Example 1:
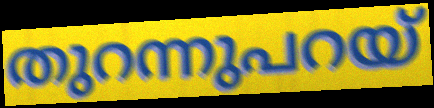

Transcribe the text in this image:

തുറന്നുപറയ്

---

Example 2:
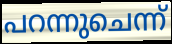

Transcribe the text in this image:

പറന്നുചെന്ന്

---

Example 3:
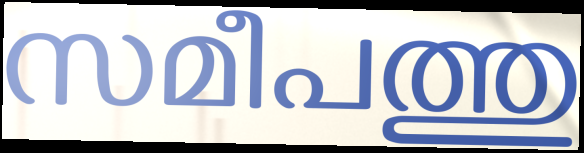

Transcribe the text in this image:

സമീപത്തു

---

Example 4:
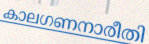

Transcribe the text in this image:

കാലഗണനാരീതി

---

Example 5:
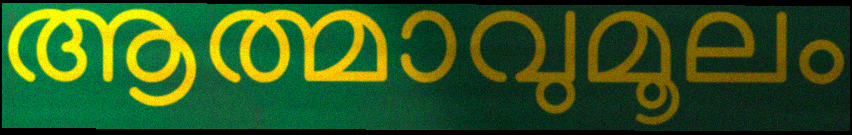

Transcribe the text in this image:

ആത്മാവുമൂലം